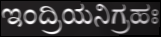
ಇಂದ್ರಿಯನಿಗ್ರಹಃ